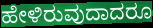
ಹೇಳಿರುವುದಾದರೂ